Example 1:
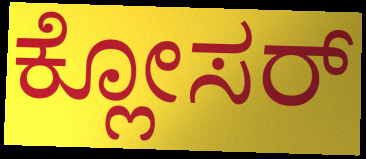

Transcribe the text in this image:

ಕ್ಲೋಸರ್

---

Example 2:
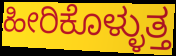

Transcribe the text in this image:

ಹೀರಿಕೊಳ್ಳುತ್ತ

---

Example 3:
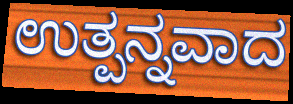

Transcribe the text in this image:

ಉತ್ಪನ್ನವಾದ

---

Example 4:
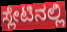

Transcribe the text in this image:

ಸ್ಲೇಟಿನಲ್ಲಿ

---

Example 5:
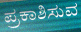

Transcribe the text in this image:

ಪ್ರಕಾಶಿಸುವ